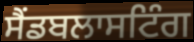
ਸੈਂਡਬਲਾਸਟਿੰਗ